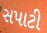
સપાટી